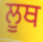
ਲੂਥ